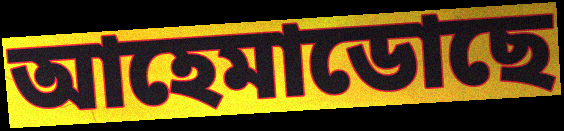
আহেমাডোছে